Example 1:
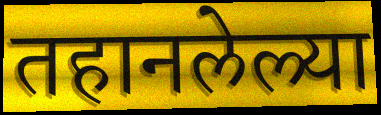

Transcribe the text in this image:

तहानलेल्या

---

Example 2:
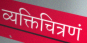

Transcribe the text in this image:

व्यक्तिचित्रणं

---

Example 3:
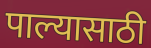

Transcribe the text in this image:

पाल्यासाठी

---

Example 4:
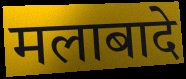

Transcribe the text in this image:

मलाबादे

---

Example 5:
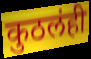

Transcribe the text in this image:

कुठलंही